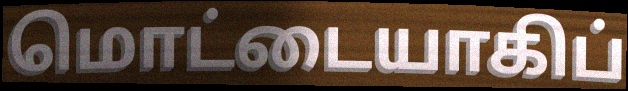
மொட்டையாகிப்